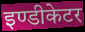
इण्डीकेटर